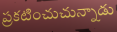
ప్రకటించుచున్నాడు